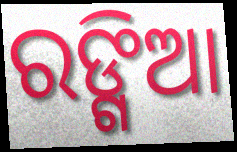
ରଙ୍ଗିଆ